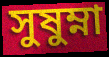
সুষুম্না